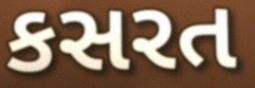
કસરત